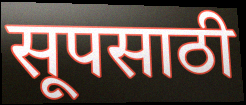
सूपसाठी